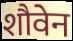
शौवेन